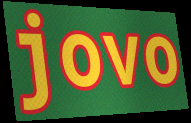
jovo